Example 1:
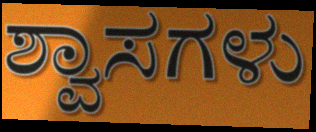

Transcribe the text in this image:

ಶ್ವಾಸಗಳು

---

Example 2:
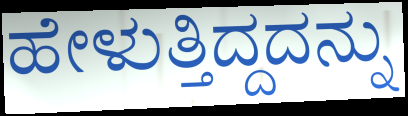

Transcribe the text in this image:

ಹೇಳುತ್ತಿದ್ದದನ್ನು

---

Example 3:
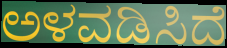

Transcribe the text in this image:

ಅಳವಡಿಸಿದೆ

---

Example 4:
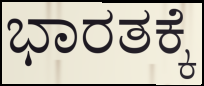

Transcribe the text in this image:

ಭಾರತಕ್ಕೆ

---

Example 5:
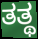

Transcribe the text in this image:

ತತ್ಥ